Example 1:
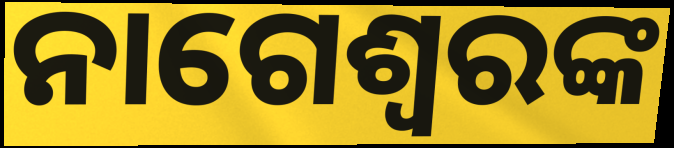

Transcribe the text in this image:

ନାଗେଶ୍ୱରଙ୍କ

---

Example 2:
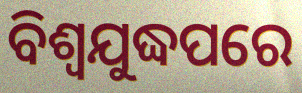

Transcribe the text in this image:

ବିଶ୍ୱଯୁଦ୍ଧପରେ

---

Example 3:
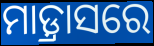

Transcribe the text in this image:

ମାଡ଼୍ରାସରେ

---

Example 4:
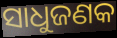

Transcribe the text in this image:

ସାଧୁଜଣକ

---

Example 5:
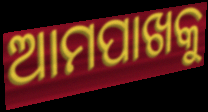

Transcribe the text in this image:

ଆମପାଖକୁ